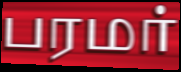
பரமர்